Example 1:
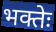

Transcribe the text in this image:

भक्तेः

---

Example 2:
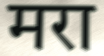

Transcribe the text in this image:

मरा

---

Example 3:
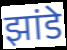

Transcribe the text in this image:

झांडे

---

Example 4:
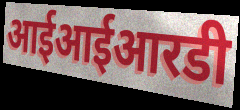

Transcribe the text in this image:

आईआईआरडी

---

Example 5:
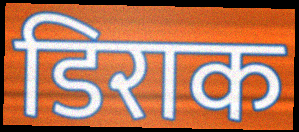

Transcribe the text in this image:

डिराक